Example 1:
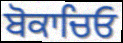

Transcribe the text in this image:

ਬੋਕਾਚਿਓ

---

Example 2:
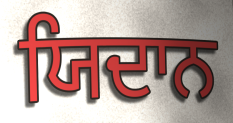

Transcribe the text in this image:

ਯਿਦਾਨ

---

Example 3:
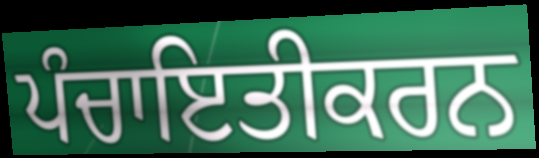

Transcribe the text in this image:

ਪੰਚਾਇਤੀਕਰਨ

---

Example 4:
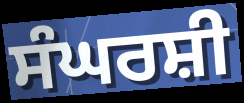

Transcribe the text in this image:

ਸੰਘਰਸ਼ੀ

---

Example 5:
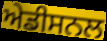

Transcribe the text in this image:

ਅੇਡੀਸਨਲ